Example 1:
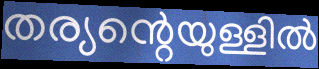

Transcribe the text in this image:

തര്യന്റെയുള്ളിൽ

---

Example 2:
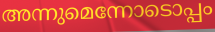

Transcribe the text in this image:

അന്നുമെന്നോടൊപ്പം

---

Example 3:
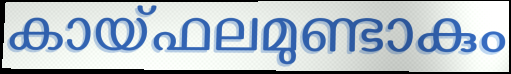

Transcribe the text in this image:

കായ്ഫലമുണ്ടാകും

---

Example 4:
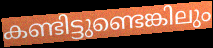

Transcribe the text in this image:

കണ്ടിട്ടുണ്ടെങ്കിലും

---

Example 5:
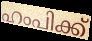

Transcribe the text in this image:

ഹംപിക്ക്